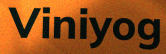
Viniyog